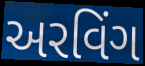
અરવિંગ